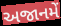
અજાનમેં